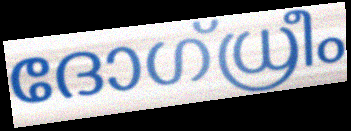
ദോഗ്ധ്രീം